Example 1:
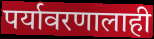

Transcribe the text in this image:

पर्यावरणालाही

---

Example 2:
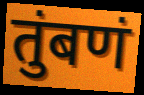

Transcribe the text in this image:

तुंबणं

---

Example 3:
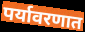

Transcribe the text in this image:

पर्यावरणात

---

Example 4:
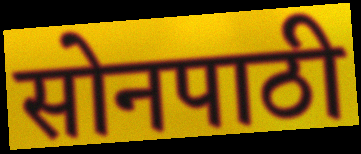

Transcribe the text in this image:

सोनपाठी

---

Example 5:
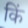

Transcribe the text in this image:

किं